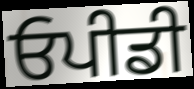
ਓਪੀਡੀ